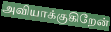
அவியாக்குகிறேன்